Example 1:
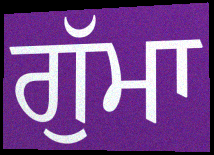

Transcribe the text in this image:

ਗੁੱਮਾ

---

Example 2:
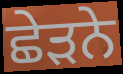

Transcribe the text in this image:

ਛੇੜਨੇ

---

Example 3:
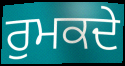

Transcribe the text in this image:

ਰੁਮਕਦੇ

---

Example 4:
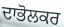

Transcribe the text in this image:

ਦਾਭੋਲਕਰ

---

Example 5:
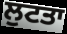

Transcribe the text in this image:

ਲੁਟਤਾ